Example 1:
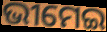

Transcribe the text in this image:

ଭୀମେଇ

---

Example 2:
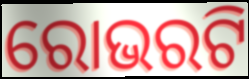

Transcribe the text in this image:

ରୋଭରଟି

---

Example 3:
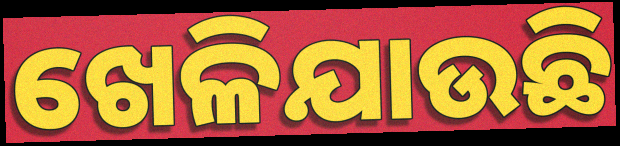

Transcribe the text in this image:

ଖେଳିଯାଉଛି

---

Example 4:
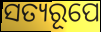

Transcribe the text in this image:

ସତ୍ୟରୂପେ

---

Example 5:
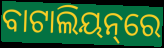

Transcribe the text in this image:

ବାଟାଲିୟନ୍‌ରେ